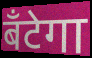
बँटेगा